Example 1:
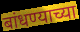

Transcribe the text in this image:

बांधण्याच्या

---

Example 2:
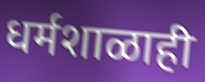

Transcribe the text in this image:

धर्मशाळाही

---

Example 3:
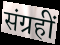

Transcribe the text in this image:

संग्रहीं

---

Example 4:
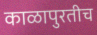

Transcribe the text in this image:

काळापुरतीच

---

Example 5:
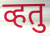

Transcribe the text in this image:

व्हतु